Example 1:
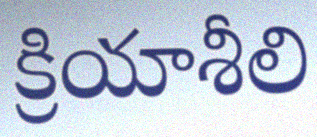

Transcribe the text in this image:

క్రియాశీలి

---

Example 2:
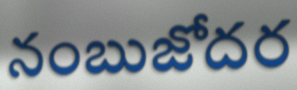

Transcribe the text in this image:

నంబుజోదర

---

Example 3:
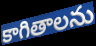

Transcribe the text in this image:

కాగితాలను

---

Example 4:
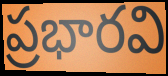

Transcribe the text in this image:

ప్రభారవి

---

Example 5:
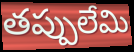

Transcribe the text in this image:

తప్పులేమి